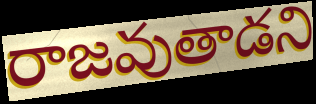
రాజవుతాడని